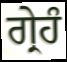
ਗ੍ਰੇਹੰ